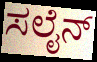
ಸಲೈನ್